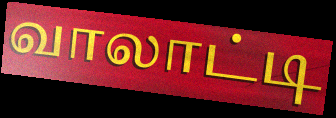
வாலாட்டி